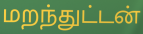
மறந்துட்டன்